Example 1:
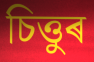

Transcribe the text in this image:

চিত্তুৰ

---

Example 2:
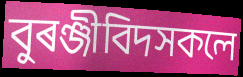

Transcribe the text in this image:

বুৰঞ্জীবিদসকলে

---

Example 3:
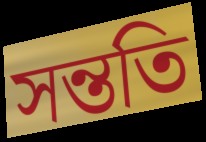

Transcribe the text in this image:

সন্ততি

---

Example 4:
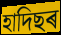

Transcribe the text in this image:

হাদিছৰ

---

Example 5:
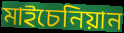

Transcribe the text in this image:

মাইচেনিয়ান